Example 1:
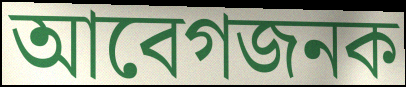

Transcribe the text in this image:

আবেগজনক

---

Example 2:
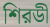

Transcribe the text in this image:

শিরডী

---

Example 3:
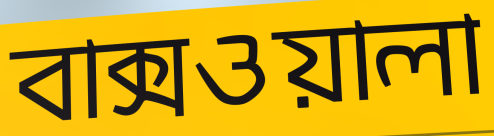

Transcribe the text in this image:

বাক্সওয়ালা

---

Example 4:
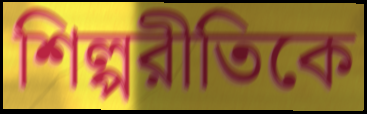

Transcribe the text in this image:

শিল্পরীতিকে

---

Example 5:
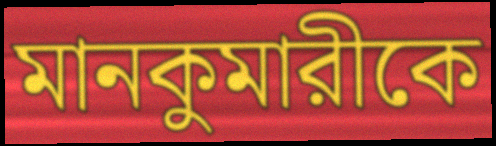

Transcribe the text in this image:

মানকুমারীকে